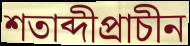
শতাব্দীপ্রাচীন